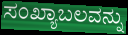
ಸಂಖ್ಯಾಬಲವನ್ನು